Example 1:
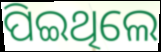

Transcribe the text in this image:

ପିଇଥିଲେ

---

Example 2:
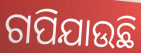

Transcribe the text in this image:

ଗପିଯାଉଛି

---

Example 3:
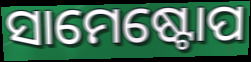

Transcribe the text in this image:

ସାମେଷ୍ଟୋପ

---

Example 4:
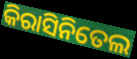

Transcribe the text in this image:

କିରାସିନିତେଲ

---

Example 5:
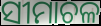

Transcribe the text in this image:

ସୀମାଚଳ